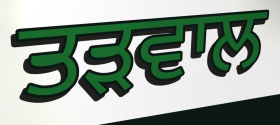
ਤੜਵਾਲ